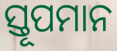
ସ୍ତୂପମାନ